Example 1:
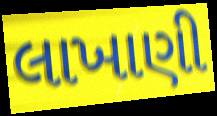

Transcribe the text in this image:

લાખાણી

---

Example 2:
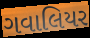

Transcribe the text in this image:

ગવાલિયર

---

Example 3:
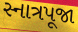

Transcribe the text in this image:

સ્નાત્રપૂજા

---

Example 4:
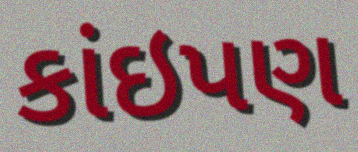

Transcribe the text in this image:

કાંઇપણ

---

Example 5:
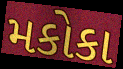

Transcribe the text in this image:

મકોકા